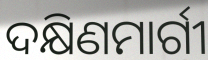
ଦକ୍ଷିଣମାର୍ଗୀ